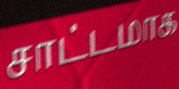
சாட்டமாக